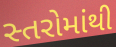
સ્તરોમાંથી